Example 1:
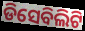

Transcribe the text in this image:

ଡିସେବିଲିଟି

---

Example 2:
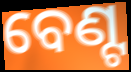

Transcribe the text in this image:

ବେଣ୍ଟ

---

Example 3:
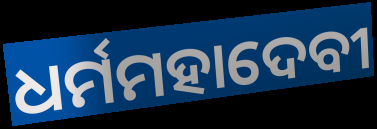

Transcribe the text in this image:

ଧର୍ମମହାଦେବୀ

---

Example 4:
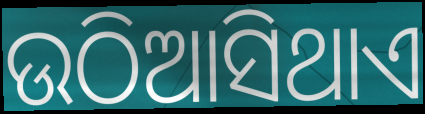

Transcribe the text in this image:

ଉଠିଆସିଥାଏ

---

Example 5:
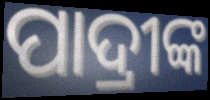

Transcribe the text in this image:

ପାଦ୍ରୀଙ୍କ